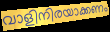
വാളിനിരയാക്കണം